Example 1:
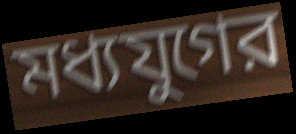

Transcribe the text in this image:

মধ্যযুগের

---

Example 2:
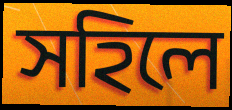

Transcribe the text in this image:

সহিলে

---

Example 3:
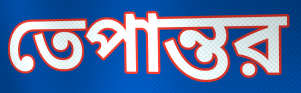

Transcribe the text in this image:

তেপান্তর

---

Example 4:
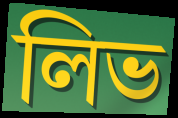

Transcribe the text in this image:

লিভ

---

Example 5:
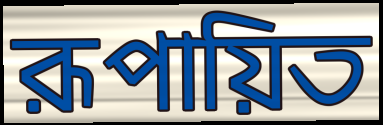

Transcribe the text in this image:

রূপায়িত